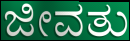
ಜೀವತು